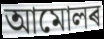
আমোলৰ